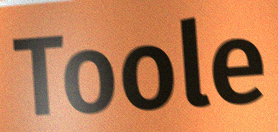
Toole